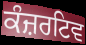
ਕੰਜ਼ਰਟਿਵ